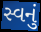
સ્વનું